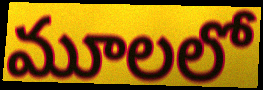
మూలలో